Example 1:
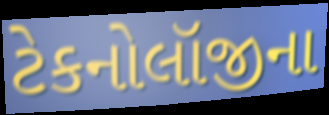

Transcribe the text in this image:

ટેકનોલૉજીના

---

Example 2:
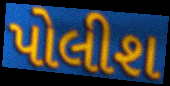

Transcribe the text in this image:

પોલીશ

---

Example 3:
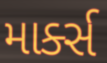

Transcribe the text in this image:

માર્ક્સ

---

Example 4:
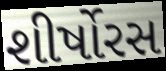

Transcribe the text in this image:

શીર્ષોરસ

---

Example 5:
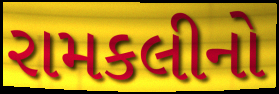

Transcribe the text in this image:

રામકલીનો